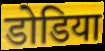
डोडिया